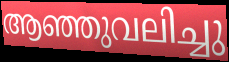
ആഞ്ഞുവലിച്ചു